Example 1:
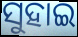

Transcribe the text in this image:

ସୁହାଇ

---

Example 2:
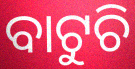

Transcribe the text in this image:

ବାଟୁଚି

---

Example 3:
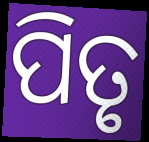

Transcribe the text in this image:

ପିତୃ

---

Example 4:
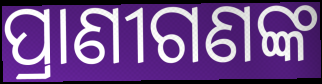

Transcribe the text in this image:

ପ୍ରାଣୀଗଣଙ୍କ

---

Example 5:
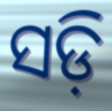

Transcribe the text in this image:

ସଡ଼ି